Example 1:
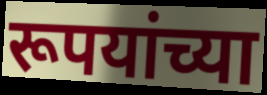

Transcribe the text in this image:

रूपयांच्या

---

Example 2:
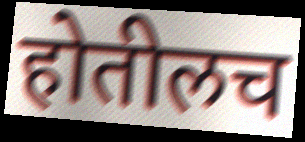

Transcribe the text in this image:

होतीलच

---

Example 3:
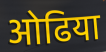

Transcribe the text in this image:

ओढिया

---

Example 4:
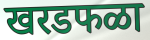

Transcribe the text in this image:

खरडफळा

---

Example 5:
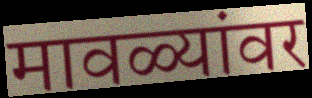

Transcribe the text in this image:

मावळ्यांवर